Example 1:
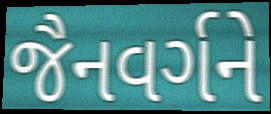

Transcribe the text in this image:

જૈનવર્ગને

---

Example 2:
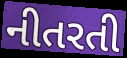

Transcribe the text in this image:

નીતરતી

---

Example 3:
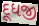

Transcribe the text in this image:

દૂધજી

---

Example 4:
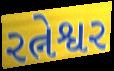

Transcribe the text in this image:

રત્નેશ્વર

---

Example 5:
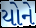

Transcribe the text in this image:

યોને